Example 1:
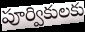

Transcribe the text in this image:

పూర్వికులకు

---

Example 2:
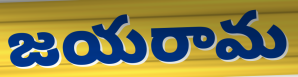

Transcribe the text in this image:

జయరామ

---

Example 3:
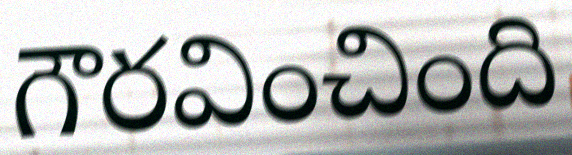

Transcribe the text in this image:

గౌరవించింది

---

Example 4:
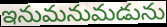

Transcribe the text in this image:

ఇనుమనుమడును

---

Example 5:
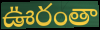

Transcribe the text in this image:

ఊరంతా